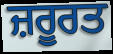
ਜ਼ਰੂਰਤ